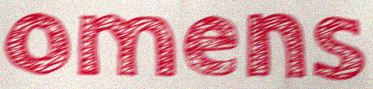
omens